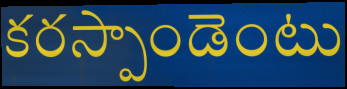
కరస్పాండెంటు